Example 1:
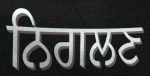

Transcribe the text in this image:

ਨਿਗਲਣ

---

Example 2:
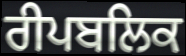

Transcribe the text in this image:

ਰੀਪਬਲਿਕ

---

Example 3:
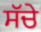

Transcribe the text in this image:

ਸੱਚੇ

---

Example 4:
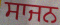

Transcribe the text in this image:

ਸਾਜਨ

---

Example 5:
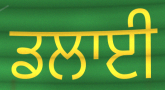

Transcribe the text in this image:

ਡਲਾਈ